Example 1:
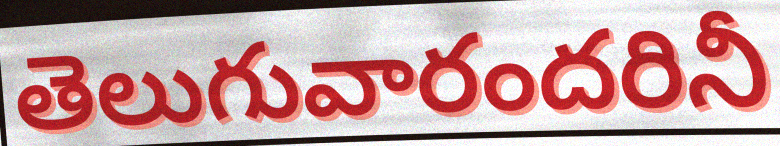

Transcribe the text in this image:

తెలుగువారందరినీ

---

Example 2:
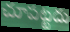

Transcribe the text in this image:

చూపట్టదు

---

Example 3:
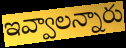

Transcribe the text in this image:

ఇవ్వాలన్నారు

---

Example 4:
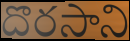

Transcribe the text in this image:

దొరసాని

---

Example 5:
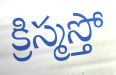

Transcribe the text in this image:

క్రిస్మస్తో